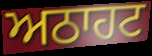
ਅਠਾਹਟ